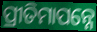
ପ୍ରୀତିମାପନ୍ନେ